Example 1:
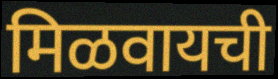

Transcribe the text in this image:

मिळवायची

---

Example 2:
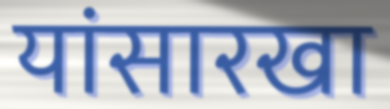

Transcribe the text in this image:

यांसारखा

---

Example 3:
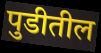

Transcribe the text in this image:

पुडीतील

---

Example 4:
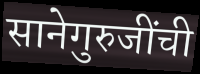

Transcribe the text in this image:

सानेगुरुजींची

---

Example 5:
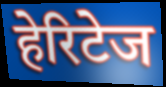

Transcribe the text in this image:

हेरिटेज